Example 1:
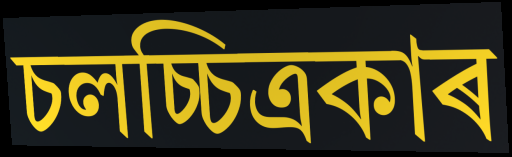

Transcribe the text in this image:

চলচ্চিত্ৰকাৰ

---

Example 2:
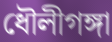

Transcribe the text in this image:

ধৌলীগঙ্গা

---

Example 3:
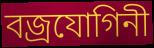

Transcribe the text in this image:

বজ্ৰযোগিনী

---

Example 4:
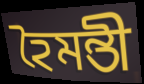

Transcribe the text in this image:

হৈমন্তী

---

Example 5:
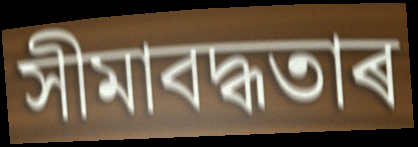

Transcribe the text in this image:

সীমাবদ্ধতাৰ